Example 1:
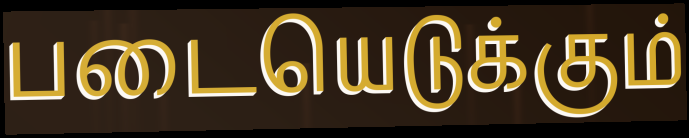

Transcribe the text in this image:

படையெடுக்கும்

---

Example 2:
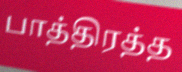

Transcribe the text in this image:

பாத்திரத்த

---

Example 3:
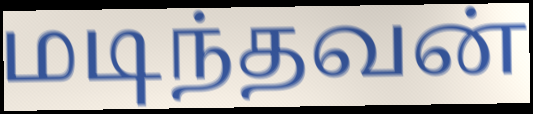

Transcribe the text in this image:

மடிந்தவன்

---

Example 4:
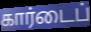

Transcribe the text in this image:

கார்டைப்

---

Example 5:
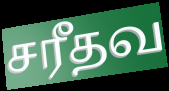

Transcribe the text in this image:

சரீதவ